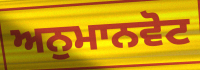
ਅਨੁਮਾਨਵੋਟ